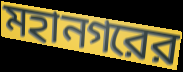
মহানগরের